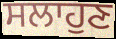
ਸਲਾਹੁਣ